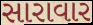
સારાવાર